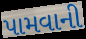
પામવાની